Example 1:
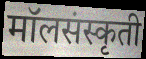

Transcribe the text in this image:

मॉलसंस्कृती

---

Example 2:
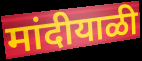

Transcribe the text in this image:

मांदीयाळी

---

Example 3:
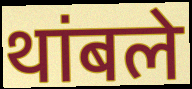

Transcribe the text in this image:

थांबले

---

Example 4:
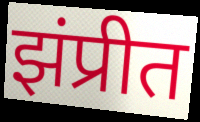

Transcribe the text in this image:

झंप्रीत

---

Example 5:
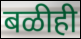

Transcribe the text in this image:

बळीही